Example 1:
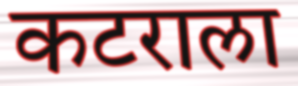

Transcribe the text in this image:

कटराला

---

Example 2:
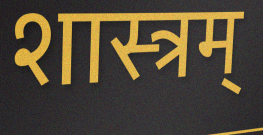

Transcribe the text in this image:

शास्त्रम्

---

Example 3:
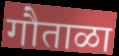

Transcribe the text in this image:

गौताळा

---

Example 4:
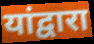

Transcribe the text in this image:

यांद्वारा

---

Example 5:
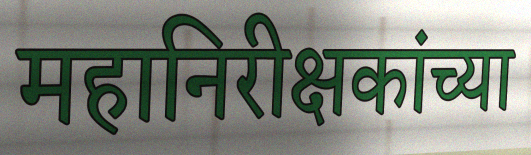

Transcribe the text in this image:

महानिरीक्षकांच्या